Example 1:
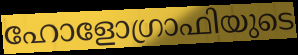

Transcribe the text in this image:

ഹോളോഗ്രാഫിയുടെ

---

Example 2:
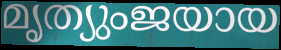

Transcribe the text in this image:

മൃത്യുംജയായ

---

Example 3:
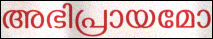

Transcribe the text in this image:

അഭിപ്രായമോ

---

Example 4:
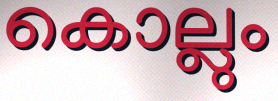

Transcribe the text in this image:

കൊല്ലും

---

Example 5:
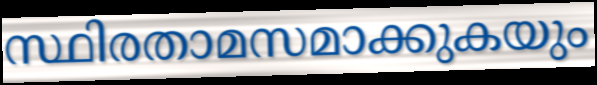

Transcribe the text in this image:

സ്ഥിരതാമസമാക്കുകയും